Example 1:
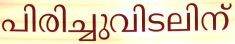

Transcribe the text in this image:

പിരിച്ചുവിടലിന്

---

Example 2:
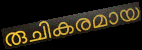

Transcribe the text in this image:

രുചികരമായ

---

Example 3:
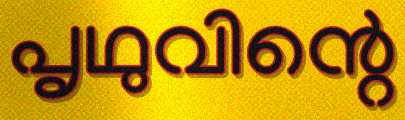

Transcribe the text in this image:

പൃഥുവിന്റെ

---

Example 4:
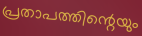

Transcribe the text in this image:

പ്രതാപത്തിന്റെയും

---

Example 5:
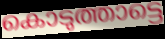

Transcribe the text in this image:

കൊടുത്താട്ടെ